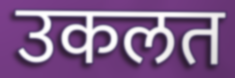
उकलत